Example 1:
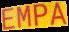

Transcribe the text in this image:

EMPA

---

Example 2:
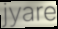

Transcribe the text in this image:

jyare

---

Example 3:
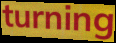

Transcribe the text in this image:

turning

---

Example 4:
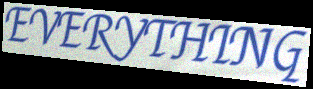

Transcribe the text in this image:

EVERYTHING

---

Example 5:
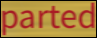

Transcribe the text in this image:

parted